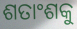
ଶତାଂଶକୁ